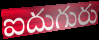
ఐదుగురు